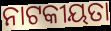
ନାଟକୀୟତା